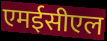
एमईसीएल